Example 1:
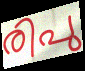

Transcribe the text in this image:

രിപു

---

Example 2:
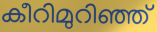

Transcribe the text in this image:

കീറിമുറിഞ്ഞ്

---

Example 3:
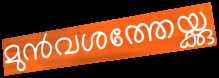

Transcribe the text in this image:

മുൻവശത്തേയ്ക്കു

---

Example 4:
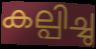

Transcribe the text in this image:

കല്പിച്ചു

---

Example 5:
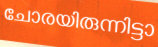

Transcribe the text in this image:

ചോരയിരുന്നിട്ടാ